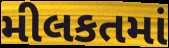
મીલકતમાં